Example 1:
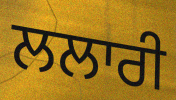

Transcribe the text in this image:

ਲਲਾਰੀ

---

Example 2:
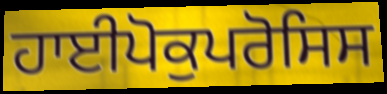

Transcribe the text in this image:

ਹਾਈਪੋਕੁਪਰੋਸਿਸ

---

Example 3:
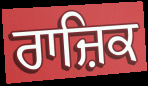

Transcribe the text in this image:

ਰਾਜ਼ਿਕ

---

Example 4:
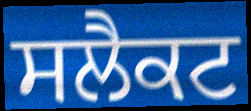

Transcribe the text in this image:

ਸਲੈਕਟ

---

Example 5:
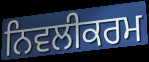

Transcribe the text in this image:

ਨਿਵਲੀਕਰਮ